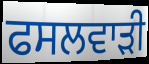
ਫਸਲਵਾੜੀ